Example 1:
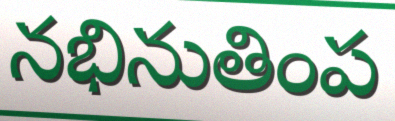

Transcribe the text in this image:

నభినుతింప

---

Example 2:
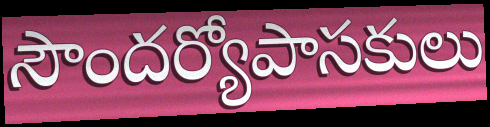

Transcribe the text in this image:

సౌందర్యోపాసకులు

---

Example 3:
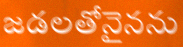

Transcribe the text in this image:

జడలతోనైనను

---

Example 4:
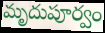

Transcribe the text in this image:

మృదుపూర్వం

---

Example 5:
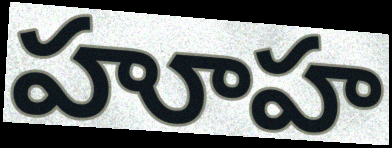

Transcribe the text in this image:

హూహ